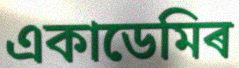
একাডেমিৰ